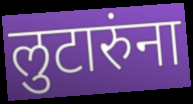
लुटारुंना